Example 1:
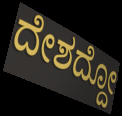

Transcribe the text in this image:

ದೇಶದ್ದೋ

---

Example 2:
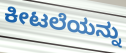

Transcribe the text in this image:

ಕೀಟಲೆಯನ್ನು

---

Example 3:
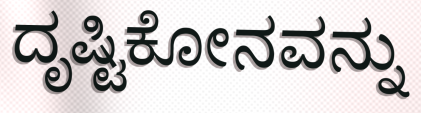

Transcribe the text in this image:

ದೃಷ್ಟಿಕೋನವನ್ನು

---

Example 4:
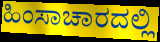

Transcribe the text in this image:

ಹಿಂಸಾಚಾರದಲ್ಲಿ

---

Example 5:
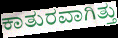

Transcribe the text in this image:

ಕಾತುರವಾಗಿತ್ತು